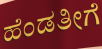
ಹೆಂಡತೀಗೆ